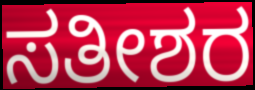
ಸತೀಶರ